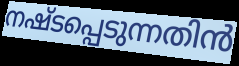
നഷ്ടപ്പെടുന്നതിൻ